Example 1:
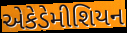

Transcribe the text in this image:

એકેડેમીશિયન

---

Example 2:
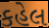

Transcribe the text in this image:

કહેલ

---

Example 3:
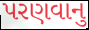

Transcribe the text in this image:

પરણવાનુ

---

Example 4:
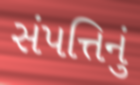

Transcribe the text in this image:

સંપત્તિનું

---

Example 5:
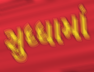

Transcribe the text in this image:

સુધ્ધામાં